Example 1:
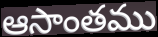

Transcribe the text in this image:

ఆసాంతము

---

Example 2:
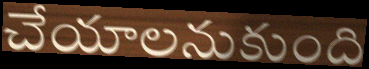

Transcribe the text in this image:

చేయాలనుకుంది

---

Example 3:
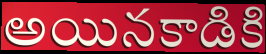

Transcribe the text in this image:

అయినకాడికి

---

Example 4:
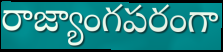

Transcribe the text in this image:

రాజ్యాంగపరంగా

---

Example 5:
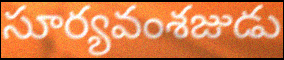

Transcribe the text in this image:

సూర్యవంశజుడు